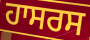
ਹਾਸਰਸ